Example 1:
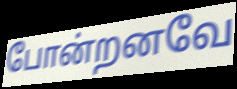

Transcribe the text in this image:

போன்றனவே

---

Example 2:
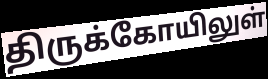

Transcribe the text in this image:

திருக்கோயிலுள்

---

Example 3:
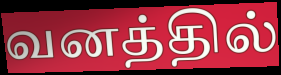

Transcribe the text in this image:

வனத்தில்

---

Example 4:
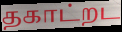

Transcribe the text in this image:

தகாட்றட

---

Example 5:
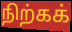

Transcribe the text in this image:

நிற்கக்